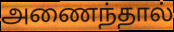
அணைந்தால்